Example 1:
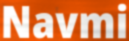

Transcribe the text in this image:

Navmi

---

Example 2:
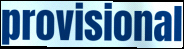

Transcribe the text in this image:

provisional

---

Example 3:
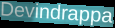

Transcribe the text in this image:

Devindrappa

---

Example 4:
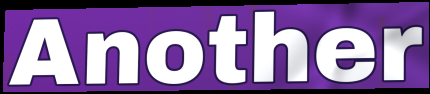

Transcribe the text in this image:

Another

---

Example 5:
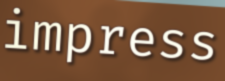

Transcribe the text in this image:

impress